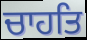
ਚਾਹਤਿ